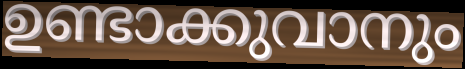
ഉണ്ടാക്കുവാനും